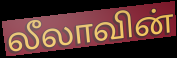
லீலாவின்